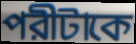
পরীটাকে